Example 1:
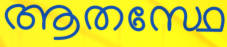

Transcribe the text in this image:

ആതസ്ഥേ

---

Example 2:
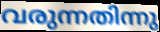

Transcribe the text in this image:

വരുന്നതിന്നു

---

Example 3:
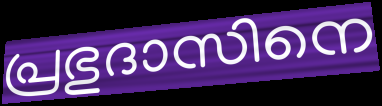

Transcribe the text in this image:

പ്രഭുദാസിനെ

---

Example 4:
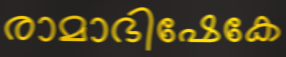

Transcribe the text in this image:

രാമാഭിഷേകേ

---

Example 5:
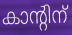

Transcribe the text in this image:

കാന്റിന്